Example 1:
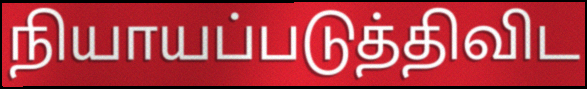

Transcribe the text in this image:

நியாயப்படுத்திவிட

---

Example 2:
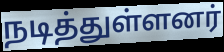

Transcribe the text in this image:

நடித்துள்ளனர்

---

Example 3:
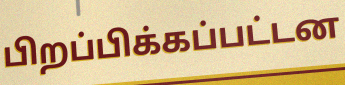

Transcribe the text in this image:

பிறப்பிக்கப்பட்டன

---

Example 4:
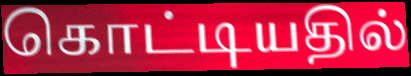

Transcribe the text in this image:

கொட்டியதில்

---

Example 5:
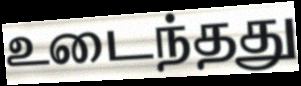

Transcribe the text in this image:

உடைந்தது